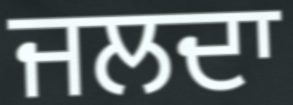
ਜਲਦਾ